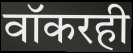
वॉकरही